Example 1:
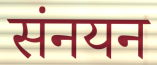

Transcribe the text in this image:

संनयन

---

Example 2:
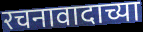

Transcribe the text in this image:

रचनावादाच्या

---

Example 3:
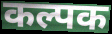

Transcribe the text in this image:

कल्पक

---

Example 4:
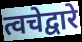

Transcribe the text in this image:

त्वचेद्वारे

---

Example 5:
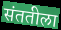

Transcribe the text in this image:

संततीला